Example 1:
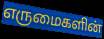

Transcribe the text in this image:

எருமைகளின்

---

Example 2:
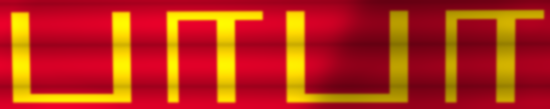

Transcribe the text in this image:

பாபா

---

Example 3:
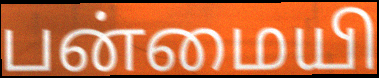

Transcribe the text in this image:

பன்மையி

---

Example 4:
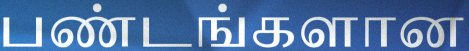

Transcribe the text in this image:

பண்டங்களான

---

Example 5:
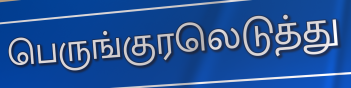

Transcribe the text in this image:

பெருங்குரலெடுத்து